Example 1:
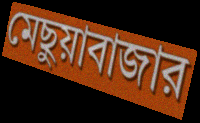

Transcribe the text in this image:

মেছুয়াবাজার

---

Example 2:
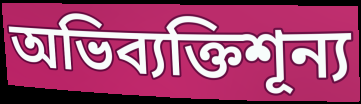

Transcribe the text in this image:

অভিব্যক্তিশূন্য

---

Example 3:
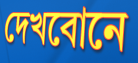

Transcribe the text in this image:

দেখবোনে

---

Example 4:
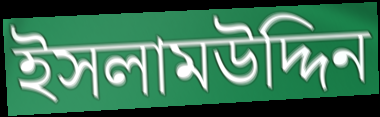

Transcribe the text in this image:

ইসলামউদ্দিন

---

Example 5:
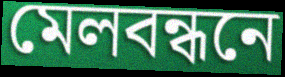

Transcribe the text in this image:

মেলবন্ধনে